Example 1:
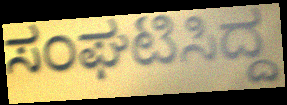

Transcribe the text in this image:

ಸಂಘಟಿಸಿದ್ದ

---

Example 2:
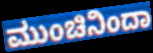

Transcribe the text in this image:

ಮುಂಚಿನಿಂದಾ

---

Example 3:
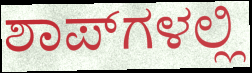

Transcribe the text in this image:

ಶಾಪ್‌ಗಳಲ್ಲಿ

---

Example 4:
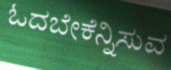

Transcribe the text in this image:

ಓದಬೇಕೆನ್ನಿಸುವ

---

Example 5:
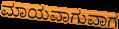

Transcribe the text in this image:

ಮಾಯವಾಗುವಾಗ